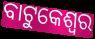
ବାଟୁକେଶ୍ୱର